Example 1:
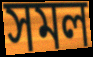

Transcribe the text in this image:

সমল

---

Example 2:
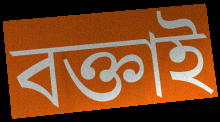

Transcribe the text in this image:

বক্তাই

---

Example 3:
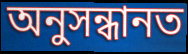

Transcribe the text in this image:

অনুসন্ধানত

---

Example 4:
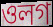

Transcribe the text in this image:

ওলগ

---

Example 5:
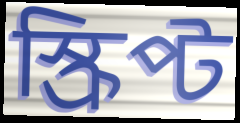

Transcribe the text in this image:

স্ক্ৰিপ্ট